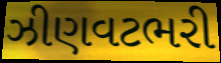
ઝીણવટભરી